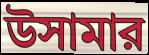
উসামার